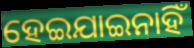
ହେଇଯାଇନାହିଁ